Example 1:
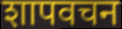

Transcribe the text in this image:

शापवचन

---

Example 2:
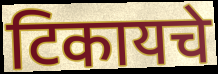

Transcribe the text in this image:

टिकायचे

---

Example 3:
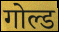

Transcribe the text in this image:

गोल्ड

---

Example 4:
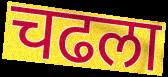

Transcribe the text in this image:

चढला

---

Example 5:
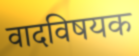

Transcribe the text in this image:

वादविषयक